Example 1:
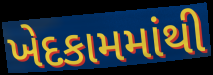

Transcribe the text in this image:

ખેદકામમાંથી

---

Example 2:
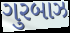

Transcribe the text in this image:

ગુરબાઝ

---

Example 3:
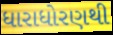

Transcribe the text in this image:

ધારાધોરણથી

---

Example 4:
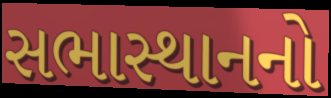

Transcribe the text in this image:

સભાસ્થાનનો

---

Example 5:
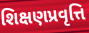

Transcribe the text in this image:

શિક્ષણપ્રવૃત્તિ